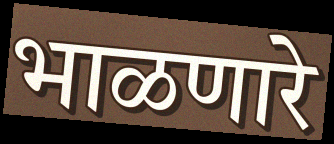
भाळणारे